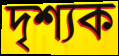
দৃশ্যক